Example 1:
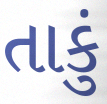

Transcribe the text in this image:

તાકું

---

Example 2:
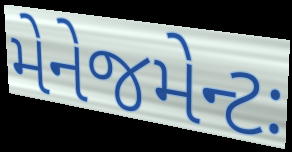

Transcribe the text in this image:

મેનેજમેન્ટઃ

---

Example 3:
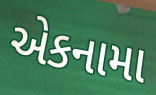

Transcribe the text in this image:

એકનામા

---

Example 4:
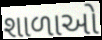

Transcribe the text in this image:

શાળાઓ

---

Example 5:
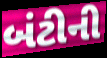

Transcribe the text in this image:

બંટીની